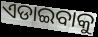
ଏଡାଇବାକୁ